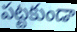
పట్టకుండా